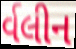
ર્વલીન